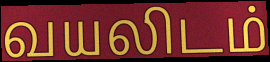
வயலிடம்